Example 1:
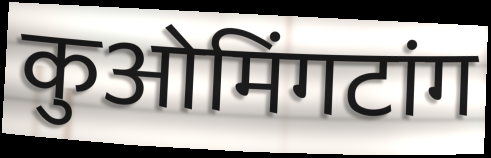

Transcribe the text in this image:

कुओमिंगटांग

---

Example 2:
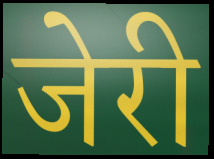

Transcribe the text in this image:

जेरी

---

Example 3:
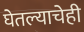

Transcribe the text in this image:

घेतल्याचेही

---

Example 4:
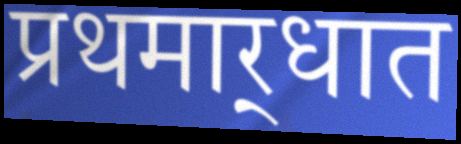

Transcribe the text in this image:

प्रथमार्धात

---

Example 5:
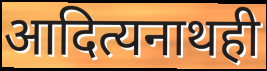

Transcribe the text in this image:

आदित्यनाथही